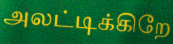
அலட்டிக்கிறே